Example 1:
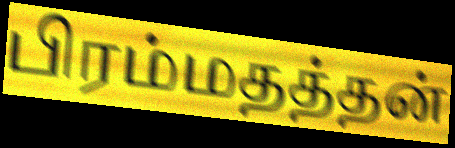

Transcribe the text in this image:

பிரம்மதத்தன்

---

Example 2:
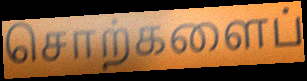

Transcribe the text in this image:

சொற்களைப்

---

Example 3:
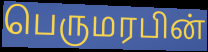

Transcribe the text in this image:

பெருமரபின்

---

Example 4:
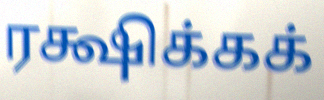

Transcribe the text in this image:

ரக்ஷிக்கக்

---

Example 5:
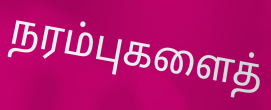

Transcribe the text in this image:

நரம்புகளைத்